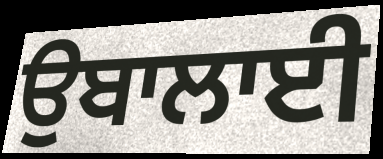
ਉਬਾਲਾਈ